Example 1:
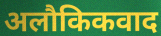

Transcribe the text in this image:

अलौकिकवाद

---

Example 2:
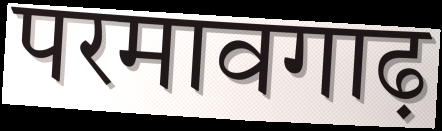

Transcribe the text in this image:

परमावगाढ़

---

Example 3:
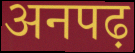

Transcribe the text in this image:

अनपढ़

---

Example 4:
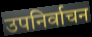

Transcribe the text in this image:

उपनिर्वाचन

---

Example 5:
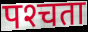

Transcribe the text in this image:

पश्चता